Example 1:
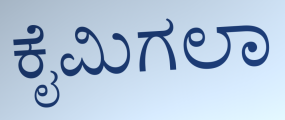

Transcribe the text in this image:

ಕೈಮಿಗಲಾ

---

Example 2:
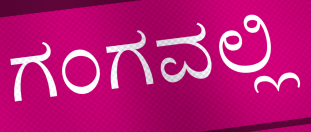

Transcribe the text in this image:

ಗಂಗವಲ್ಲಿ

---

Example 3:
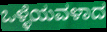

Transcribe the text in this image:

ಒಳ್ಳೆಯವಳಾದ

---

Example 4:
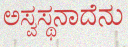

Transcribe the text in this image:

ಅಸ್ವಸ್ಥನಾದೆನು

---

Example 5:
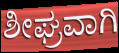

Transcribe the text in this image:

ಶೀಘ್ರವಾಗಿ